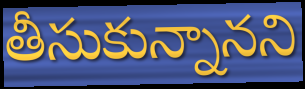
తీసుకున్నానని